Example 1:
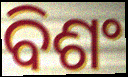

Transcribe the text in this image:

ବିଶଂ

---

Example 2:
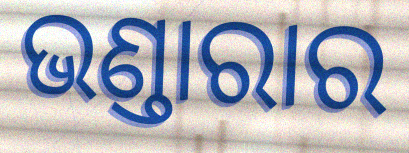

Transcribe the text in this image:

ଭଣ୍ଡାରାର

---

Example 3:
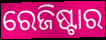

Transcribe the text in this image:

ରେଜିଷ୍ଟାର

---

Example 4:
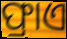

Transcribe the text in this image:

ଫ୍ରାଏ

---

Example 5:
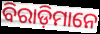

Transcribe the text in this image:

ବିରାଡ଼ିମାନେ